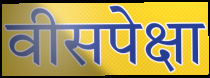
वीसपेक्षा